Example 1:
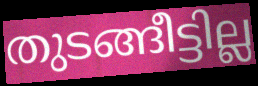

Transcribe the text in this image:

തുടങ്ങീട്ടില്ല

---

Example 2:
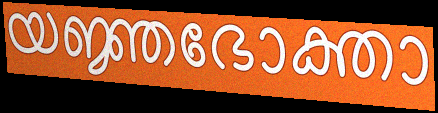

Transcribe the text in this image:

യജ്ഞഭോക്താ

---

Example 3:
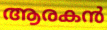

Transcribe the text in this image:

ആരകൻ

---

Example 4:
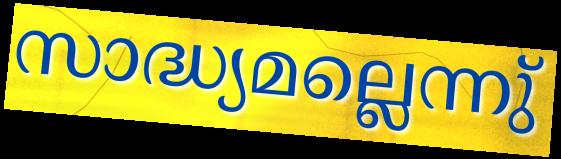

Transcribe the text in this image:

സാദ്ധ്യമല്ലെന്നു്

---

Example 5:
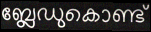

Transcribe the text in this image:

ബ്ലേഡുകൊണ്ട്